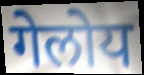
गेलोय